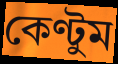
কেণ্টুম